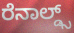
ರೆನಾಲ್ಡ್ಸ್